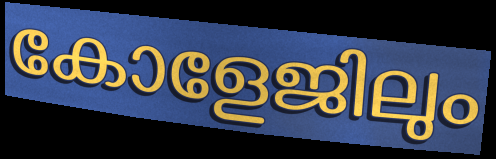
കോളേജിലും